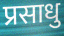
प्रसाधु